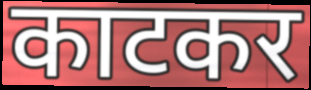
काटकर